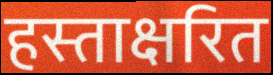
हस्ताक्षरित